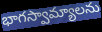
భాగస్వామ్యాలను